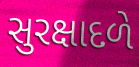
સુરક્ષાદળે